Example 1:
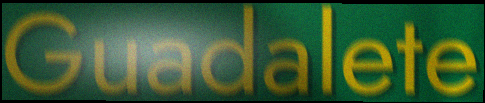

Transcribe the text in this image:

Guadalete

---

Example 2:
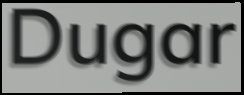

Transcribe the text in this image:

Dugar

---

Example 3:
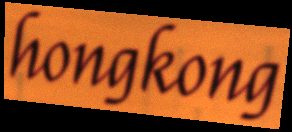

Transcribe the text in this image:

hongkong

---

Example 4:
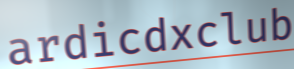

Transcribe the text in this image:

ardicdxclub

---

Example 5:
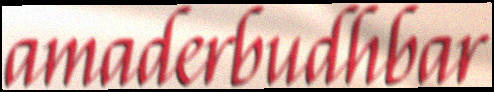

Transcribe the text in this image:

amaderbudhbar